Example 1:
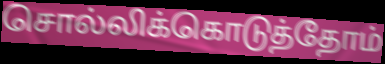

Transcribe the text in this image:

சொல்லிக்கொடுத்தோம்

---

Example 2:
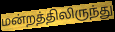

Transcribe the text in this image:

மன்றத்திலிருந்து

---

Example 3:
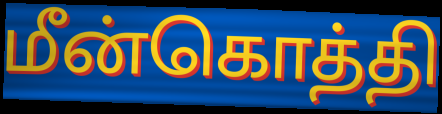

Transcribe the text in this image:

மீன்கொத்தி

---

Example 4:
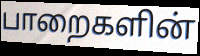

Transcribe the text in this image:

பாறைகளின்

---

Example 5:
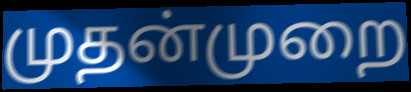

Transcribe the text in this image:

முதன்முறை